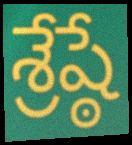
శ్రేష్ఠే